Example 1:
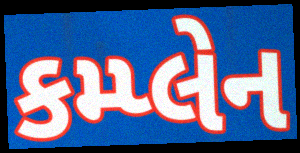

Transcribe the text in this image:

કમ્પ્લેન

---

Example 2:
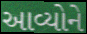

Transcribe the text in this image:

આવ્યોને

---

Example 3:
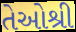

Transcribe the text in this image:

તેઓશ્રી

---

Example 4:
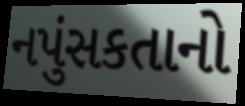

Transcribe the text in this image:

નપુંસકતાનો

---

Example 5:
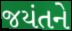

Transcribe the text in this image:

જયંતને